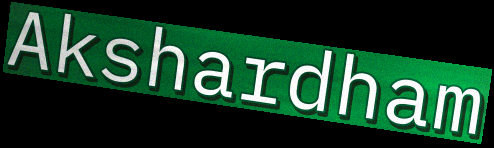
Akshardham